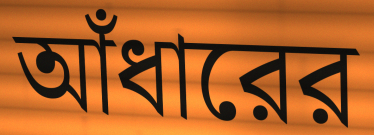
আঁধারের